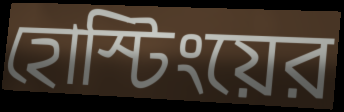
হোস্টিংয়ের